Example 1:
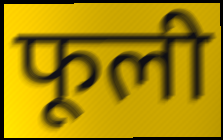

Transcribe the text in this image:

फूली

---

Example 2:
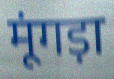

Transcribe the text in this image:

मूंगड़ा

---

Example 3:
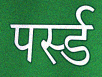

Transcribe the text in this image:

पर्स्ड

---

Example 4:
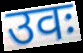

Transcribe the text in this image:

उवः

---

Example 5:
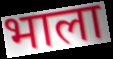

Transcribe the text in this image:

भाला